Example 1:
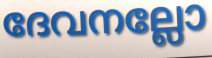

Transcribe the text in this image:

ദേവനല്ലോ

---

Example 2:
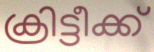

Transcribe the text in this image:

ക്രിട്ടീക്ക്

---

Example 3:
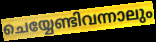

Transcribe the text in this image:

ചെയ്യേണ്ടിവന്നാലും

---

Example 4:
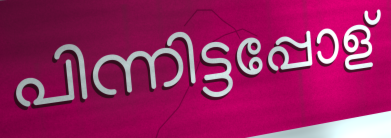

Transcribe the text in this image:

പിന്നിട്ടപ്പോള്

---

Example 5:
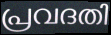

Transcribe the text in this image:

പ്രവദതി